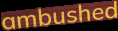
ambushed